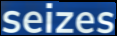
seizes